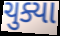
ચુક્યા